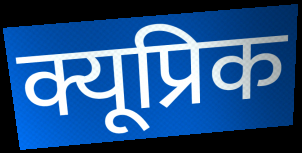
क्यूप्रिक